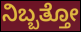
ನಿಬ್ಬತ್ತೋ